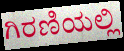
ಗಿರಣಿಯಲ್ಲಿ